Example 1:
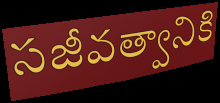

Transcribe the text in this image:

సజీవత్వానికి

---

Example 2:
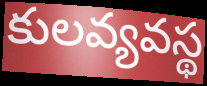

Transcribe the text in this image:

కులవ్యవస్థ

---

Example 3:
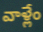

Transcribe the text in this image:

వాళ్లేం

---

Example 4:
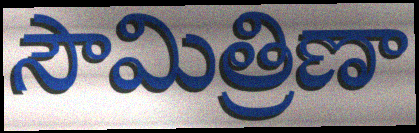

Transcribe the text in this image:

సౌమిత్రిణా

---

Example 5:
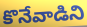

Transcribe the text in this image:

కొనేవాడిని